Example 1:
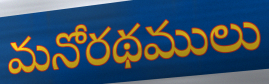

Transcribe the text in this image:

మనోరథములు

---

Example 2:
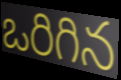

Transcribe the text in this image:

ఒరిగిన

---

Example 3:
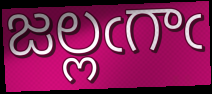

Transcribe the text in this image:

జల్లఁగాఁ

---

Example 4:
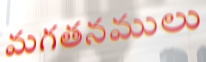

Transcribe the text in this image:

మగతనములు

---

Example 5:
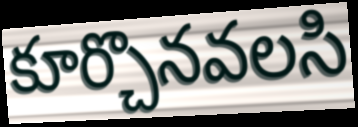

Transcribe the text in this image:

కూర్చొనవలసి